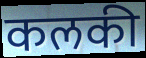
कलकी